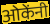
ओकेंनी